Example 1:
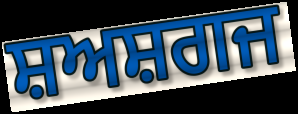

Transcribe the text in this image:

ਸ਼ਅਸ਼ਗਜ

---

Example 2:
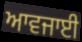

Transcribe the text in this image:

ਆਵਜਾਈ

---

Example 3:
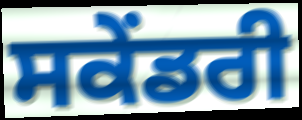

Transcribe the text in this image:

ਸਕੇਂਡਰੀ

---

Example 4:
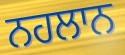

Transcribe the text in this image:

ਨਹਲਾਨ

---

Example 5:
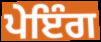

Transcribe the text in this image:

ਪੇਇੰਗ